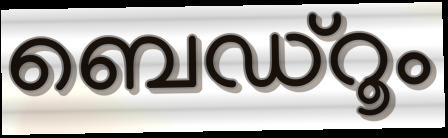
ബെഡ്റൂം